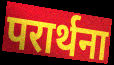
परार्थना